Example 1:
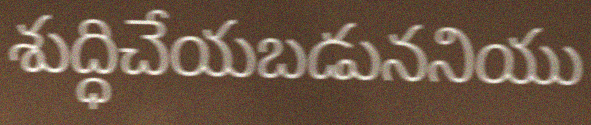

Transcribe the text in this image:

శుద్ధిచేయబడుననియు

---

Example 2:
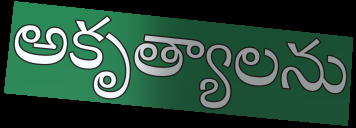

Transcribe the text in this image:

అకృత్యాలను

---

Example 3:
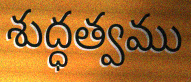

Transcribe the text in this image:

శుద్ధత్వము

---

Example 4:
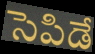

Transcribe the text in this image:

సెపిడే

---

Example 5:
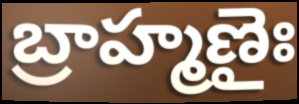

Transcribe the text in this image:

బ్రాహ్మణైః